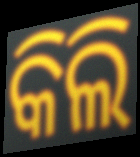
କିଲି